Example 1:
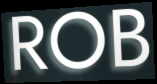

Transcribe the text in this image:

ROB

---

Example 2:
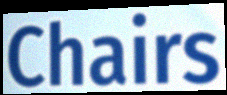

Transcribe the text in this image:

Chairs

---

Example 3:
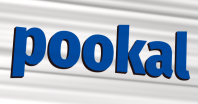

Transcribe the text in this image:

pookal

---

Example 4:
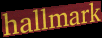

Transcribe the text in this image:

hallmark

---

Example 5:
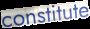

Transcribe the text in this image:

constitute